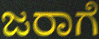
ಜರಾಗೆ